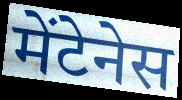
मेंटेनेस